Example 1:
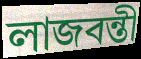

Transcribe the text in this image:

লাজবন্তী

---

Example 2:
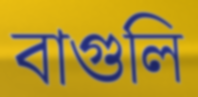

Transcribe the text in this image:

বাগুলি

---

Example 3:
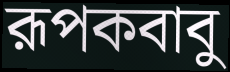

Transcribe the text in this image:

রূপকবাবু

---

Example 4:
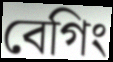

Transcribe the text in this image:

বেগিং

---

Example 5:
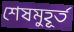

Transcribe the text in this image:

শেষমুহূর্ত